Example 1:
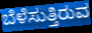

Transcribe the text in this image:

ಬೆಳೆಸುತ್ತಿರುವ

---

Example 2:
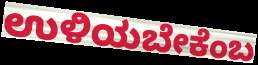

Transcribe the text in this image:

ಉಳಿಯಬೇಕೆಂಬ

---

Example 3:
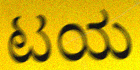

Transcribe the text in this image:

ಟಯ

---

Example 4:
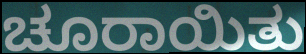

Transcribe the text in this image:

ಚೂರಾಯಿತು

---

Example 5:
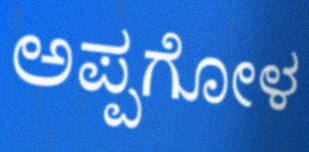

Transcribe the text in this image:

ಅಪ್ಪಗೋಳ